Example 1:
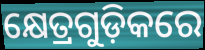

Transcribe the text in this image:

କ୍ଷେତ୍ରଗୁଡ଼ିକରେ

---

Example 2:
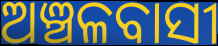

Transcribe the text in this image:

ଅଞ୍ଚଳବାସୀ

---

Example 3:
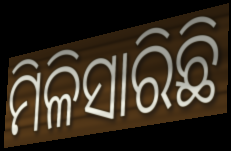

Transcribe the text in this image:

ମିଳିସାରିଛି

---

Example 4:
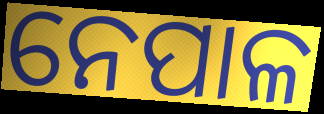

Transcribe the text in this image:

ନେପାଳ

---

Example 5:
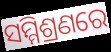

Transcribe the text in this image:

ସମ୍ମିଶ୍ରଣରେ